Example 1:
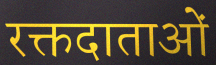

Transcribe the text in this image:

रक्तदाताओं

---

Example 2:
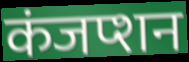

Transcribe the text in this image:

कंजप्शन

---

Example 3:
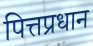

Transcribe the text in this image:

पित्तप्रधान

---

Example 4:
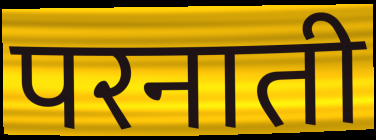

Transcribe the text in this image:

परनाती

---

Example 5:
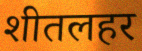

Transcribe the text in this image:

शीतलहर